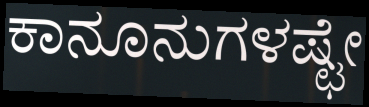
ಕಾನೂನುಗಳಷ್ಟೇ